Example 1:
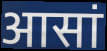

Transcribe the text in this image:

आसां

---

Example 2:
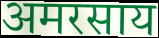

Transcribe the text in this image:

अमरसाय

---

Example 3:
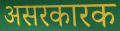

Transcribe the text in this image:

असरकारक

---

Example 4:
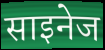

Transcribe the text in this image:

साइनेज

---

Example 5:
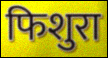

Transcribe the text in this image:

फिशुरा